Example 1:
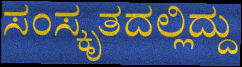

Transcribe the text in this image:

ಸಂಸ್ಕೃತದಲ್ಲಿದ್ದು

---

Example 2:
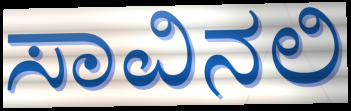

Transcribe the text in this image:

ಸಾವಿನಲಿ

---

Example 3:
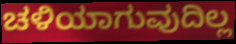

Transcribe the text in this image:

ಚಳಿಯಾಗುವುದಿಲ್ಲ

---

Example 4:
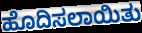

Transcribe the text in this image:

ಹೊದಿಸಲಾಯಿತು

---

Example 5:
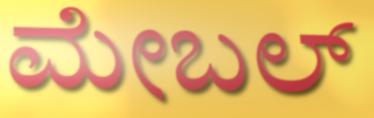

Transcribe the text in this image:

ಮೇಬಲ್